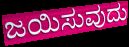
ಜಯಿಸುವುದು